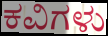
ಕವಿಗಳು